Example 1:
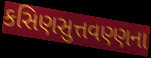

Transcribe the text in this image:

કસિણસુત્તવણ્ણના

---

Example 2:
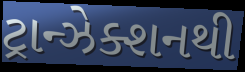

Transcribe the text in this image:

ટ્રાન્ઝેક્શનથી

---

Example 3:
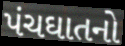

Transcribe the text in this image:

પંચઘાતનો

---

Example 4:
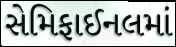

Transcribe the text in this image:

સેમિફાઈનલમાં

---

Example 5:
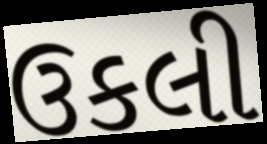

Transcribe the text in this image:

ઉકલી